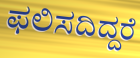
ಫಲಿಸದಿದ್ದರೆ